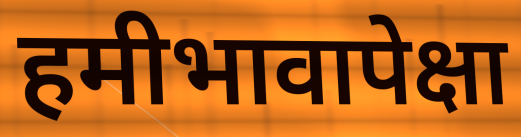
हमीभावापेक्षा